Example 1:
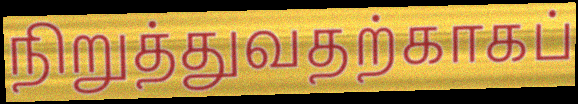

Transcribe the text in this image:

நிறுத்துவதற்காகப்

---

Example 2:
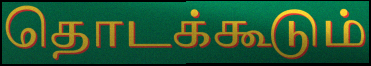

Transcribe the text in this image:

தொடக்கூடும்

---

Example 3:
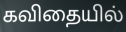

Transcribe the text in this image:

கவிதையில்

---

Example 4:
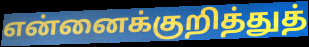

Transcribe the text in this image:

என்னைக்குறித்துத்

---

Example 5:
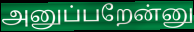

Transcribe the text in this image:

அனுப்பறேன்னு